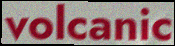
volcanic